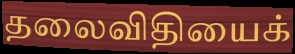
தலைவிதியைக்